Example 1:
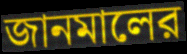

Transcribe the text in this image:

জানমালের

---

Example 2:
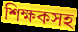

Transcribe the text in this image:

শিক্ষকসহ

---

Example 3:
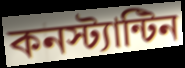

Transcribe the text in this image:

কনস্ট্যান্টিন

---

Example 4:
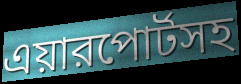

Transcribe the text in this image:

এয়ারপোর্টসহ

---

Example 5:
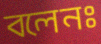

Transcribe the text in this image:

বলেনঃ